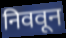
निववून